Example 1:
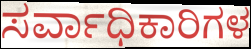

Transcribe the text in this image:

ಸರ್ವಾಧಿಕಾರಿಗಳ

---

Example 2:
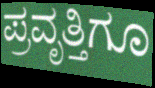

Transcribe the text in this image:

ಪ್ರವೃತ್ತಿಗೂ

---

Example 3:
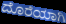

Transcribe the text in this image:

ದೊರೆಯಾಗಿ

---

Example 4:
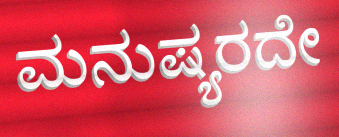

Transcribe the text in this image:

ಮನುಷ್ಯರದೇ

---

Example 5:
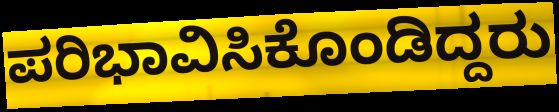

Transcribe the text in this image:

ಪರಿಭಾವಿಸಿಕೊಂಡಿದ್ದರು